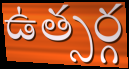
ఉత్సర్గ